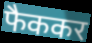
फैककर